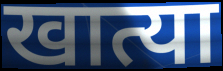
खात्या